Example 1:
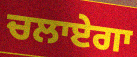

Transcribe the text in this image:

ਚਲਾਏਗਾ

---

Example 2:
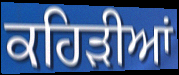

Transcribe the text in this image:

ਕਹਿੜੀਆਂ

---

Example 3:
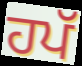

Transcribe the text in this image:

ਹਪੱ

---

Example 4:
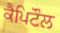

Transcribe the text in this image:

ਕੈਪਿਟੌਲ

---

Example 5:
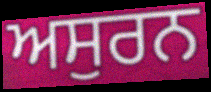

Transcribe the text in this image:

ਅਸੁਰਨ